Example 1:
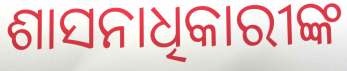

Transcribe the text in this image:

ଶାସନାଧିକାରୀଙ୍କ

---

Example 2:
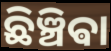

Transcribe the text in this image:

ଛିଞ୍ଚିଵା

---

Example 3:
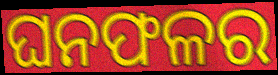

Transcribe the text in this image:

ଘନଫଳର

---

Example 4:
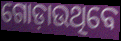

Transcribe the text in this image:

ଗୋଡ଼ାଉଥିବେ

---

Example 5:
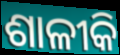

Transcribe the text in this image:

ଶାଳୀକି